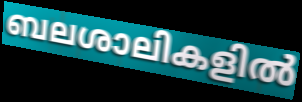
ബലശാലികളിൽ